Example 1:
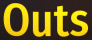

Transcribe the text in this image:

Outs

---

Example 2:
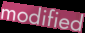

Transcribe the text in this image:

modified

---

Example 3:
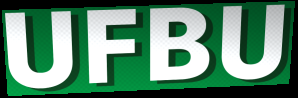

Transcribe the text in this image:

UFBU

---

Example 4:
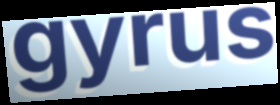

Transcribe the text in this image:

gyrus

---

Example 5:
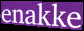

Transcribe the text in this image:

enakke